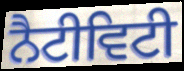
ਨੈਟੀਵਿਟੀ